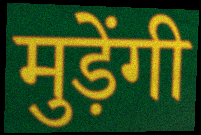
मुड़ेंगी